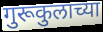
गुरूकुलाच्या